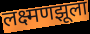
लक्ष्मणझूला